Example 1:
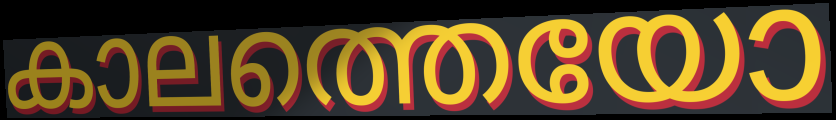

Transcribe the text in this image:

കാലത്തെയോ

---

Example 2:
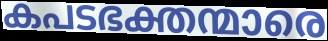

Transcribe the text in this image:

കപടഭക്തന്മാരെ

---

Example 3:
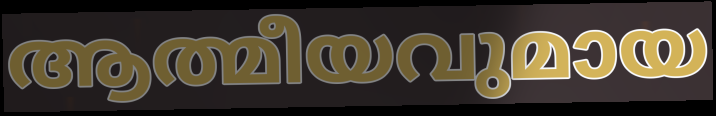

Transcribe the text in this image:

ആത്മീയവുമായ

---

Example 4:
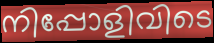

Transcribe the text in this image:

നിപ്പോളിവിടെ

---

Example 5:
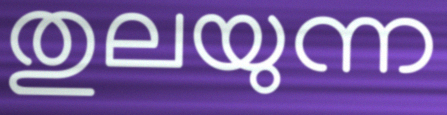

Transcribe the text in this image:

തുലയുന്ന